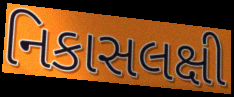
નિકાસલક્ષી